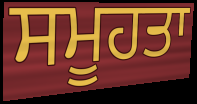
ਸਮੂਹਤਾ